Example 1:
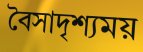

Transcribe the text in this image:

বৈসাদৃশ্যময়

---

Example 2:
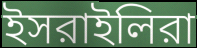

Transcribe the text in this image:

ইসরাইলিরা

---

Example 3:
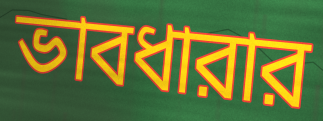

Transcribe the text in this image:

ভাবধারার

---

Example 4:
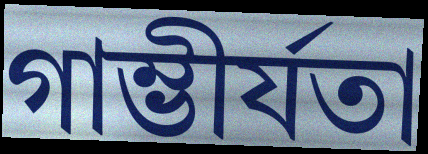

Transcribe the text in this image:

গাম্ভীর্যতা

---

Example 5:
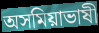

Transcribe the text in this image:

অসমিয়াভাষী